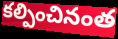
కల్పించినంత